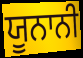
ਯੂਨਾਨੀ